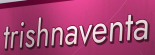
trishnaventa